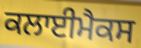
ਕਲਾਈਮੈਕਸ